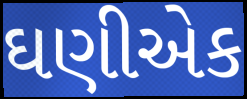
ઘણીએક